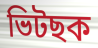
ভিটছক